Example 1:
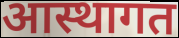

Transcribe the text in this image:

आस्थागत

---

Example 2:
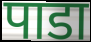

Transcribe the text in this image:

पाडा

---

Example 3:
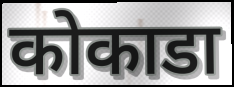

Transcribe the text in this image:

कोकाडा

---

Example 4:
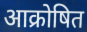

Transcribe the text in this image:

आक्रोषित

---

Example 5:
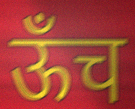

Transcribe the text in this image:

ऊँच